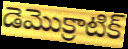
డెమొక్రాటిక్